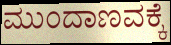
ಮುಂದಾಣವಕ್ಕೆ